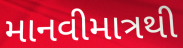
માનવીમાત્રથી